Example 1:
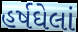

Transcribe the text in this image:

હર્ષઘેલાં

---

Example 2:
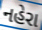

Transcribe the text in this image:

નહેરા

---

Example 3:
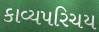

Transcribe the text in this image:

કાવ્યપરિચય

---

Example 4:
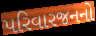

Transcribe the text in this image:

પરિવારજનનો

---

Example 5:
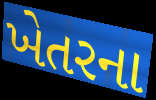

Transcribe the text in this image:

ખેતરના